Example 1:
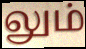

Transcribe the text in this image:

லும்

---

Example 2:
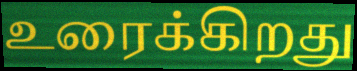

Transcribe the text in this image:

உரைக்கிறது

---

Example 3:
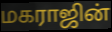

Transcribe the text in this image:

மகராஜின்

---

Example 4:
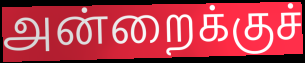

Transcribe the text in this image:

அன்றைக்குச்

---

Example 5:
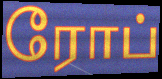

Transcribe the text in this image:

ரோப்